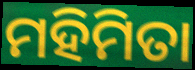
ମହିମିତା